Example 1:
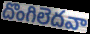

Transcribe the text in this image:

దొంగిలెదవా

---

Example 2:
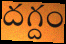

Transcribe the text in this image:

దగ్దం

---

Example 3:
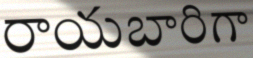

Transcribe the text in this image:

రాయబారిగా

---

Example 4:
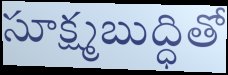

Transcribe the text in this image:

సూక్ష్మబుద్ధితో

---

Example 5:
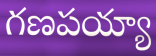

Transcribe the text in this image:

గణపయ్యా